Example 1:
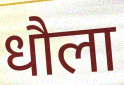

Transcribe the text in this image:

धौला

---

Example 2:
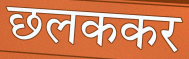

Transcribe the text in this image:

छलककर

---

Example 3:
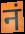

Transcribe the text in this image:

नं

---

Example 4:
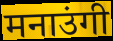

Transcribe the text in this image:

मनाउंगी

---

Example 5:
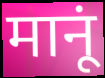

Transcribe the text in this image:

मानूं